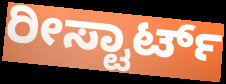
ರೀಸ್ಟಾರ್ಟ್